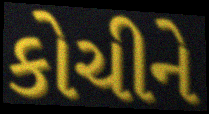
કોચીને